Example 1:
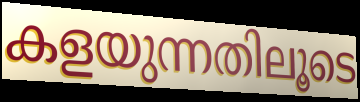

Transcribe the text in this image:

കളയുന്നതിലൂടെ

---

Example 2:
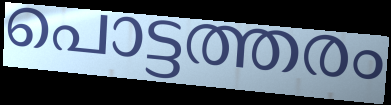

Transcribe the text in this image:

പൊട്ടത്തരം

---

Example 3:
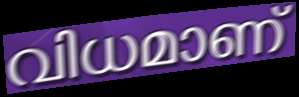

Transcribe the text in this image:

വിധമാണ്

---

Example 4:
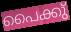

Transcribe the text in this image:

പൈക്കു്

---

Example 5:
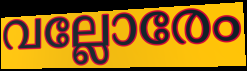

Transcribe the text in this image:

വല്ലോരേം